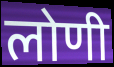
लोणी